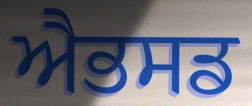
ਐਭਸਡ